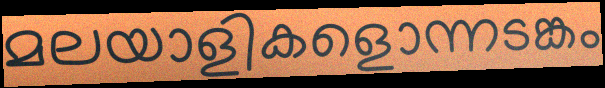
മലയാളികളൊന്നടങ്കം